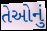
તેઓનું